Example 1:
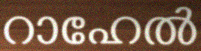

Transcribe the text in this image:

റാഹേൽ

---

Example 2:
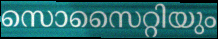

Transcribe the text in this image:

സൊസൈറ്റിയും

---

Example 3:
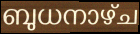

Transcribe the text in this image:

ബുധനാഴ്‌ച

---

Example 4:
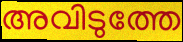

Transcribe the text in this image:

അവിടുത്തേ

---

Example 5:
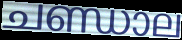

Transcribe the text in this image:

ചണ്ഡാല